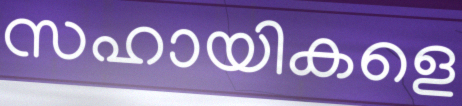
സഹായികളെ